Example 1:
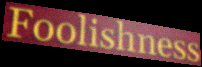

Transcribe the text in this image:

Foolishness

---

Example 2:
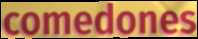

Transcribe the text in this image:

comedones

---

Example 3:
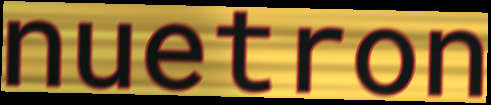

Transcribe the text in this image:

nuetron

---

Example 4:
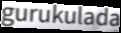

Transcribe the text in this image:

gurukulada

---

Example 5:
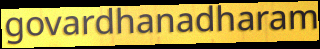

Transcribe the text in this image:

govardhanadharam